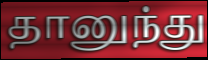
தானுந்து